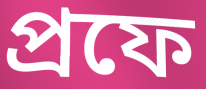
প্রফে